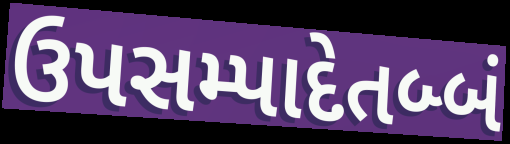
ઉપસમ્પાદેતબ્બં